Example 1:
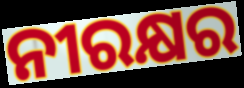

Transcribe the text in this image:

ନୀରକ୍ଷର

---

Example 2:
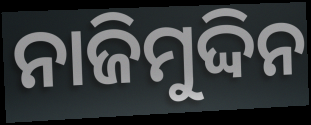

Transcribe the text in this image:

ନାଜିମୁଦ୍ଦିନ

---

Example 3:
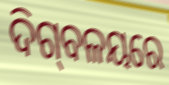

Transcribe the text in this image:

ଦିଗ୍‌ବଳୟରେ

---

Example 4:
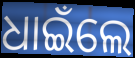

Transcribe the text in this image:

ଧାଇଁଲେ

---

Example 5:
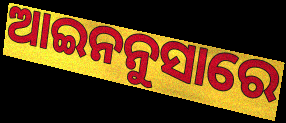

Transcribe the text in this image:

ଆଇନନୁସାରେ